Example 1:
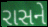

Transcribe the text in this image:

રાસને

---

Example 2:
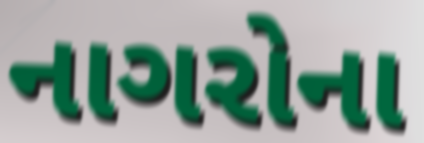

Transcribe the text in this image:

નાગરોના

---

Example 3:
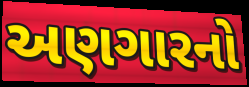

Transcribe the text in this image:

અણગારનો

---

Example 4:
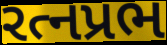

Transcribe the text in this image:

રત્નપ્રભ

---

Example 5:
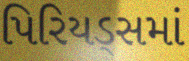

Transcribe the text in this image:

પિરિયડ્સમાં